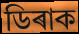
ডিৰাক